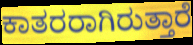
ಕಾತರರಾಗಿರುತ್ತಾರೆ